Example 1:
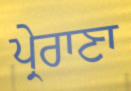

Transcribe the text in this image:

ਪ੍ਰੇਰਾਣਾ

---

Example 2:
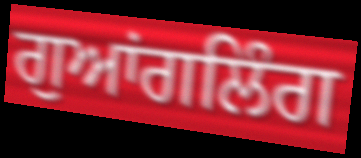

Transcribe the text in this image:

ਗੁਆਂਗਲਿੰਗ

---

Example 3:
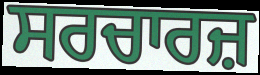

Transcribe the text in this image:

ਸਰਚਾਰਜ਼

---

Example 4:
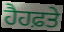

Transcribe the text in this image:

ਹੈਹਫ਼ਤੇ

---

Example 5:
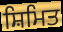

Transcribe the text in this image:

ਸ਼ਿਮਿਤ